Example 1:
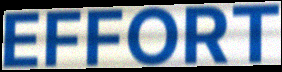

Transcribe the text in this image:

EFFORT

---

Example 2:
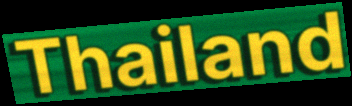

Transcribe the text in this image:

Thailand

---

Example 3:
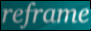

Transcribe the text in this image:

reframe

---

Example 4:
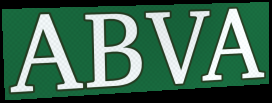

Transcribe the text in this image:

ABVA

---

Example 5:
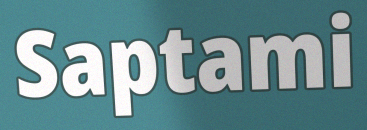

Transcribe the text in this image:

Saptami